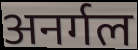
अनर्गल